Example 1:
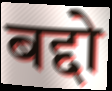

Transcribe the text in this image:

बद्दो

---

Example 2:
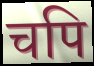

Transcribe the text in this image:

चपि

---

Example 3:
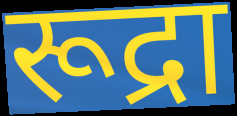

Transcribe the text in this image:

रूद्रा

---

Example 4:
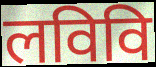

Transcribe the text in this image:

लविवि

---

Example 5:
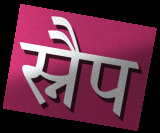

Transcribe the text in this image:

स्नैप